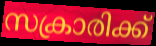
സക്രാരിക്ക്